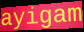
ayigam